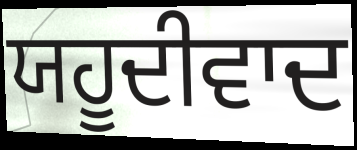
ਯਹੂਦੀਵਾਦ